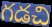
గడచి